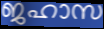
ജഹാസ